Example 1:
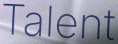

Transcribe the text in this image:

Talent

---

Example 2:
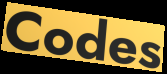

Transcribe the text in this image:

Codes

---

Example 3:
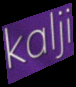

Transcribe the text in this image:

kalji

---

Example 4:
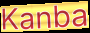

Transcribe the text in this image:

Kanba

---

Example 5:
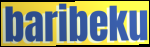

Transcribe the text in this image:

baribeku